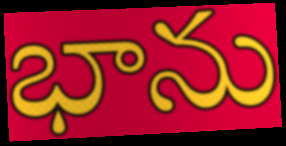
భాను